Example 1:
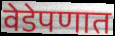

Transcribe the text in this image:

वेडेपणात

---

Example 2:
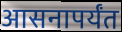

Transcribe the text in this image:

आसनापर्यंत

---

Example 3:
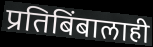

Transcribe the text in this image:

प्रतिबिंबालाही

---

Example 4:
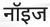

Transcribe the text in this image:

नॉइज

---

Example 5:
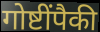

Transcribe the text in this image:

गोष्टींपैकी